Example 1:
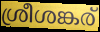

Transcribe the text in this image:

ശ്രീശങ്കര്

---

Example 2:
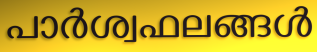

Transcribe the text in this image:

പാർശ്വഫലങ്ങൾ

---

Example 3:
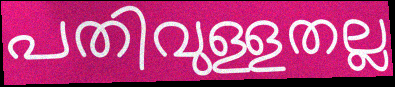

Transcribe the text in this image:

പതിവുള്ളതല്ല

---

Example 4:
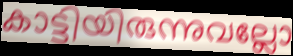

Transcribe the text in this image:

കാട്ടിയിരുന്നുവല്ലോ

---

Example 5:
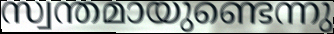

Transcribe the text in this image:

സ്വന്തമായുണ്ടെന്നു